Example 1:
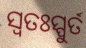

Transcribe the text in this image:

ସ୍ୱତଃସ୍ପୁର୍ତ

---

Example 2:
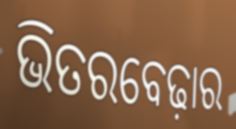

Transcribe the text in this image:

ଭିତରବେଢ଼ାର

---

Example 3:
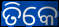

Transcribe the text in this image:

ତିକେ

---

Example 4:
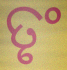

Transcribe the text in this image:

ତୃଂ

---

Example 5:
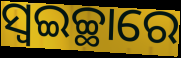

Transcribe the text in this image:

ସ୍ୱଇଚ୍ଛାରେ